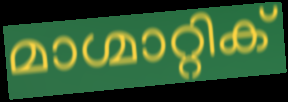
മാഗ്മാറ്റിക്